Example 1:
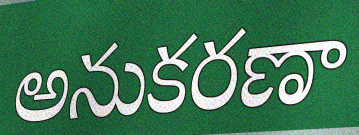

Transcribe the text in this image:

అనుకరణా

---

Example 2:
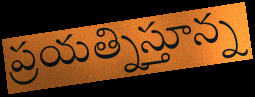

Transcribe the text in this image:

ప్రయత్నిస్తూన్న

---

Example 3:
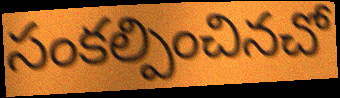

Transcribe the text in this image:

సంకల్పించినచో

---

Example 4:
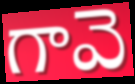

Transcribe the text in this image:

గావె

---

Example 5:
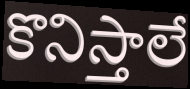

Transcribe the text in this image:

కొనిస్తాలే